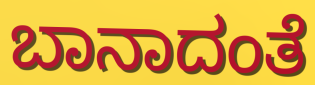
ಬಾನಾದಂತೆ